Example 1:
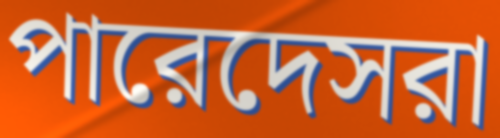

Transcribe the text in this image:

পারেদেসরা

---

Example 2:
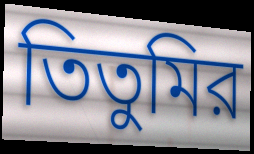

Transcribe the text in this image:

তিতুমির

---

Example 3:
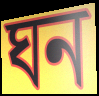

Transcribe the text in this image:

ঘন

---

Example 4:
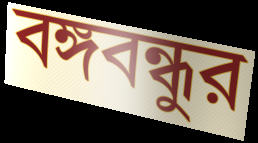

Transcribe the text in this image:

বঙ্গবন্ধুর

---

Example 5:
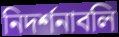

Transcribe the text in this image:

নিদর্শনাবলি